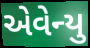
એવેન્યુ